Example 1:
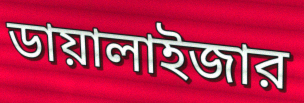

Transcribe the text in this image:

ডায়ালাইজার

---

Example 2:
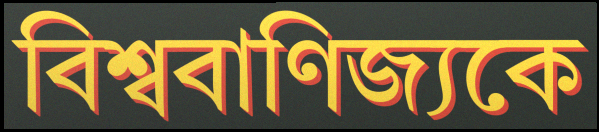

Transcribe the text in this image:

বিশ্ববাণিজ্যকে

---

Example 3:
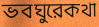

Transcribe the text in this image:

ভবঘুরেকথা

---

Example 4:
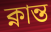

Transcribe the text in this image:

ক্নান্ত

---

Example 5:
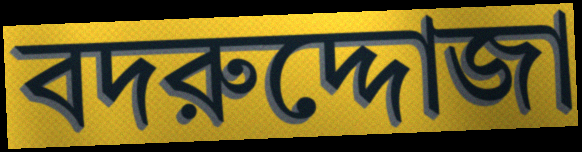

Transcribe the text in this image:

বদরুদ্দোজা